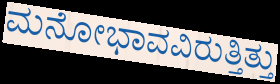
ಮನೋಭಾವವಿರುತ್ತಿತ್ತು